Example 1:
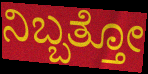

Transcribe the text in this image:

ನಿಬ್ಬತ್ತೋ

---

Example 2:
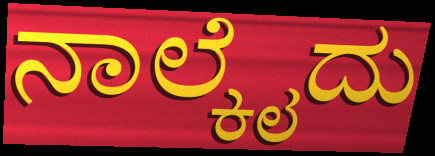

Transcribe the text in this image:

ನಾಲ್ಕೈದು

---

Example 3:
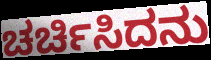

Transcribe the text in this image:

ಚರ್ಚಿಸಿದನು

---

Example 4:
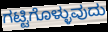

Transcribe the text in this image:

ಗಟ್ಟಿಗೊಳ್ಳುವುದು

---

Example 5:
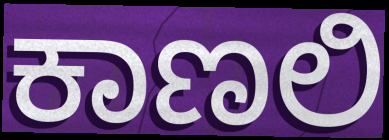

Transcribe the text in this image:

ಕಾಣಲಿ